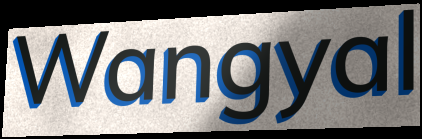
Wangyal